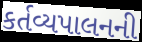
કર્તવ્યપાલનની